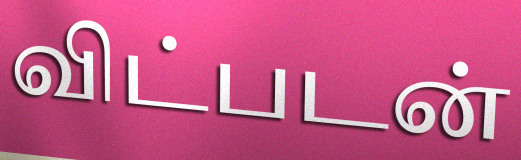
விட்படன்